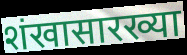
शंखासारख्या